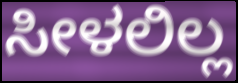
ಸೀಳಲಿಲ್ಲ